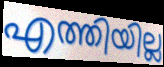
എത്തിയില്ല